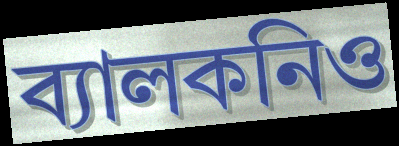
ব্যালকনিও